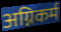
अग्निकर्म